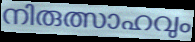
നിരുത്സാഹവും